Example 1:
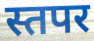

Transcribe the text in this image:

स्तपर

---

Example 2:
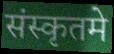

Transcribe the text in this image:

संस्कृतमे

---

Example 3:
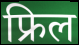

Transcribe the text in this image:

फ्रिल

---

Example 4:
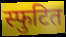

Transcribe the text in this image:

स्फुटित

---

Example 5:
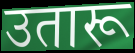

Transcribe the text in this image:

उतारू